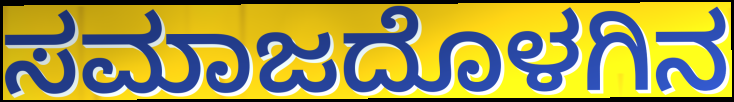
ಸಮಾಜದೊಳಗಿನ